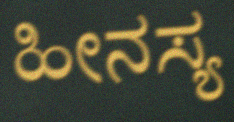
ಹೀನಸ್ಯ